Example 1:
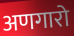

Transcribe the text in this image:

अणगारो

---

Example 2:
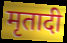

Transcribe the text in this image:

मृतादी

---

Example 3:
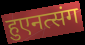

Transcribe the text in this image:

हुएनत्संग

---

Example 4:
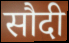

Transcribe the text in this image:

सौदी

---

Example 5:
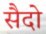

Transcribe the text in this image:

सैदो